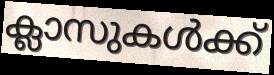
ക്ലാസുകൾക്ക്